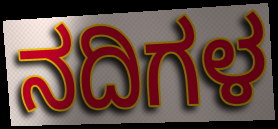
ನದಿಗಳ